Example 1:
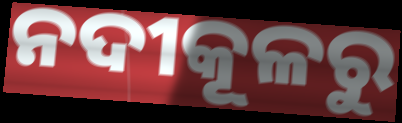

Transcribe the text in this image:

ନଦୀକୂଳରୁ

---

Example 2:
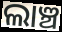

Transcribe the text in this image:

ଲାଞ୍ଚ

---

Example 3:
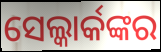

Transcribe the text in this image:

ସେଲ୍କାର୍କଙ୍କର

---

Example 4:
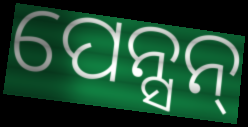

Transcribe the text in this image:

ପେନ୍ସନ୍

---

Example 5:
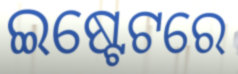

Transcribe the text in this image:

ଇଷ୍ଟେଟରେ